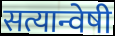
सत्यान्वेषी